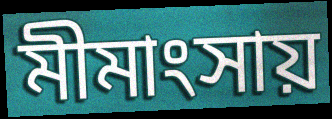
মীমাংসায়